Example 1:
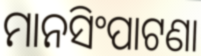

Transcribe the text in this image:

ମାନସିଂପାଟଣା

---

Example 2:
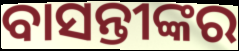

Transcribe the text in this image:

ବାସନ୍ତୀଙ୍କର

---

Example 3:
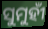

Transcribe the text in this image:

ସୁମୁହୀଁ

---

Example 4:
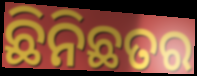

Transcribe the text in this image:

ଛିନିଛତର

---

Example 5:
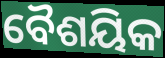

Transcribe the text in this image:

ବୈଶୟିକ